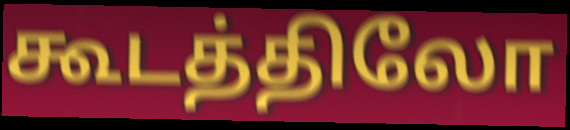
கூடத்திலோ